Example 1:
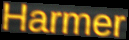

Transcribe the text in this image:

Harmer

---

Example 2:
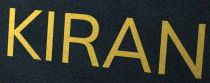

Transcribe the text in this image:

KIRAN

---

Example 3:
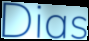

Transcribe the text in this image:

Dias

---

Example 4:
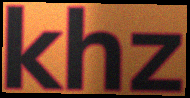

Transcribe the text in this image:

khz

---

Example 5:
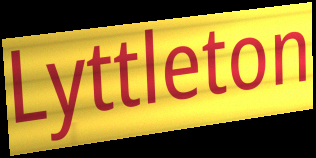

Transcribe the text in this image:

Lyttleton